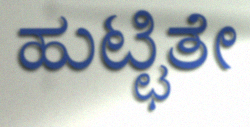
ಹುಟ್ಟಿತೇ